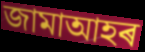
জামাআহৰ